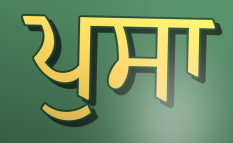
ਪੁਸਾ